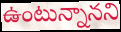
ఉంటున్నానని